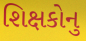
શિક્ષકોનુ